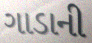
ગાડાની